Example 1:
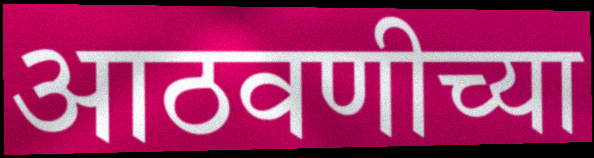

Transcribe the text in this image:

आठवणीच्या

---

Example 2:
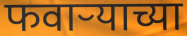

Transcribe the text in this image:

फवाऱ्याच्या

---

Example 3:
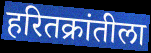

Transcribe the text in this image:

हरितक्रांतीला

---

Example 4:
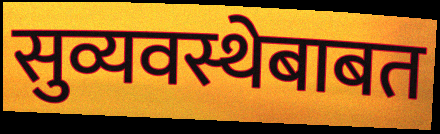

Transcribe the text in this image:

सुव्यवस्थेबाबत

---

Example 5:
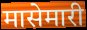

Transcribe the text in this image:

मासेमारी